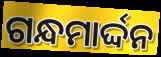
ଗନ୍ଧମାର୍ଦ୍ଦନ